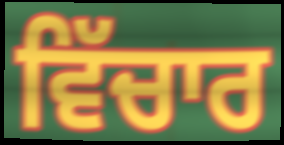
ਵਿੱਚਾਰ